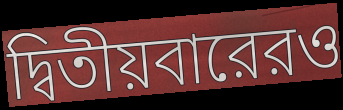
দ্বিতীয়বারেরও